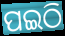
ପଇଠି